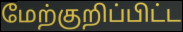
மேற்குறிப்பிட்ட